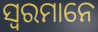
ସ୍ୱରମାନେ